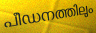
പീഡനത്തിലും